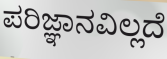
ಪರಿಜ್ಞಾನವಿಲ್ಲದೆ